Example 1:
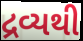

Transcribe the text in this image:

દ્રવ્યથી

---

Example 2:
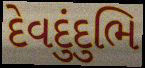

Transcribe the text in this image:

દેવદુંદુભિ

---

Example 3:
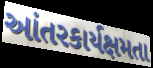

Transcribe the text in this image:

આંતરકાર્યક્ષમતા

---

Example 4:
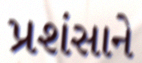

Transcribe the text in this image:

પ્રશંસાને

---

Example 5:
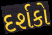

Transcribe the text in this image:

દર્શકો